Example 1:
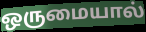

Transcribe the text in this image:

ஒருமையால்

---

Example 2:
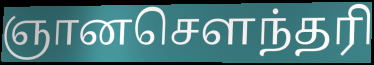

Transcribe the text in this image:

ஞானசெளந்தரி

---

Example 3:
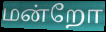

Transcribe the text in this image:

மன்றோ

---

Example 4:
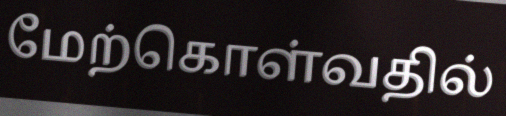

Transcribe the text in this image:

மேற்கொள்வதில்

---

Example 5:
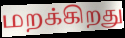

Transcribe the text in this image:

மறக்கிறது